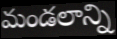
మండలాన్ని